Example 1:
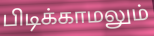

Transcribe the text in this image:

பிடிக்காமலும்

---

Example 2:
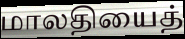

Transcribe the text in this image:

மாலதியைத்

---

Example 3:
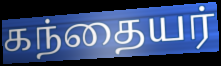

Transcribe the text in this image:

கந்தையர்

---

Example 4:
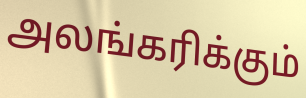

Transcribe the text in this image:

அலங்கரிக்கும்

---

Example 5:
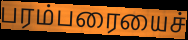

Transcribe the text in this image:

பரம்பரையைச்